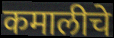
कमालीचे